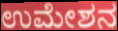
ಉಮೇಶನ